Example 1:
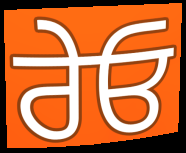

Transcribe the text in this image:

ਰੇਓ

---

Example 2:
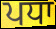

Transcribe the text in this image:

ਪਧਾ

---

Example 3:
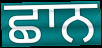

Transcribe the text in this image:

ਛਾਨ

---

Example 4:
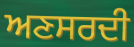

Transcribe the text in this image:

ਅਣਸਰਦੀ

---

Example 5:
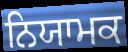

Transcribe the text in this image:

ਨਿਯਾਮਕ